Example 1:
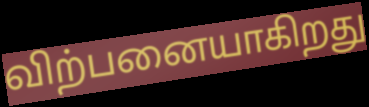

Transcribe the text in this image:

விற்பனையாகிறது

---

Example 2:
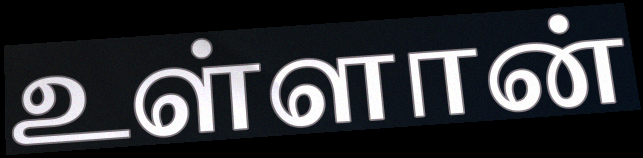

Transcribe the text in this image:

உள்ளான்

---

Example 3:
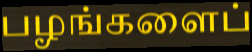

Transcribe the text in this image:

பழங்களைப்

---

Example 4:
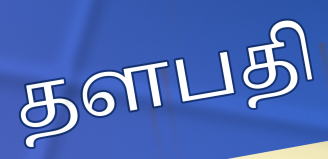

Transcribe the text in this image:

தளபதி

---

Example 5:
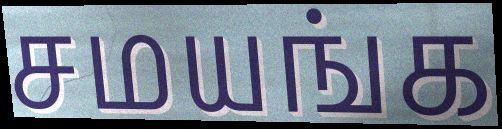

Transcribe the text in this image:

சமயங்க